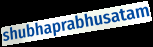
shubhaprabhusatam